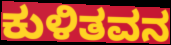
ಕುಳಿತವನ